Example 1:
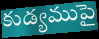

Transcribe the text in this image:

కుడ్యముపై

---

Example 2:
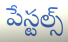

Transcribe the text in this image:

పేస్టల్స్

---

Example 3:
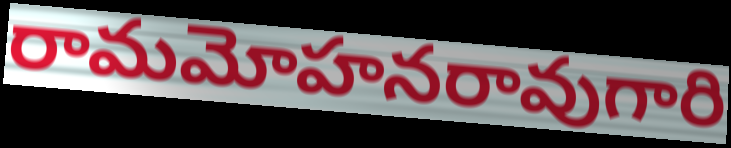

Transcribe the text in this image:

రామమోహనరావుగారి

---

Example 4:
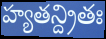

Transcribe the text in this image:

హ్యతన్ద్రితః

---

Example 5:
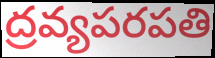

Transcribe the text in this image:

ద్రవ్యపరపతి